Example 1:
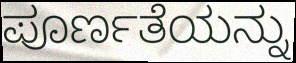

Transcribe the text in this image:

ಪೂರ್ಣತೆಯನ್ನು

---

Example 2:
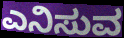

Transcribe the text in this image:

ಎನಿಸುವ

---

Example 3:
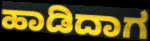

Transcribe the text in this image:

ಹಾಡಿದಾಗ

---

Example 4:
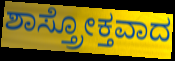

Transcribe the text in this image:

ಶಾಸ್ತ್ರೋಕ್ತವಾದ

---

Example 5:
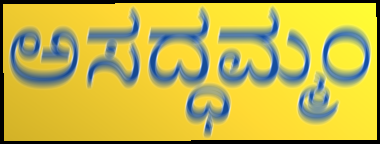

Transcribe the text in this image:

ಅಸದ್ಧಮ್ಮಂ